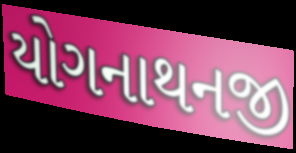
યોગનાથનજી